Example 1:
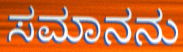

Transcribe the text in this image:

ಸಮಾನನು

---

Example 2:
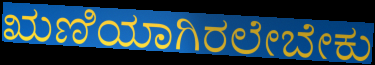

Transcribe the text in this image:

ಋಣಿಯಾಗಿರಲೇಬೇಕು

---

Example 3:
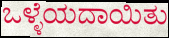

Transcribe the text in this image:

ಒಳ್ಳೆಯದಾಯಿತು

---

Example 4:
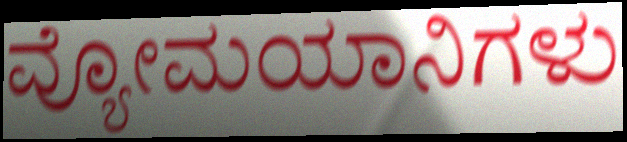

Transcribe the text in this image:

ವ್ಯೋಮಯಾನಿಗಳು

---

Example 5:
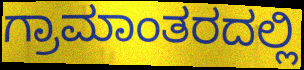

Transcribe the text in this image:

ಗ್ರಾಮಾಂತರದಲ್ಲಿ